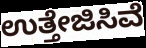
ಉತ್ತೇಜಿಸಿವೆ